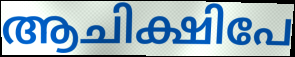
ആചിക്ഷിപേ